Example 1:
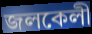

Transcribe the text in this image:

জলকেলী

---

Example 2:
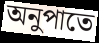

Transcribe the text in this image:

অনুপাতে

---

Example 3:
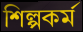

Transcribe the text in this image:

শিল্পকৰ্ম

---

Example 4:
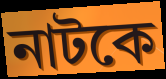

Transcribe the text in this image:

নাটকে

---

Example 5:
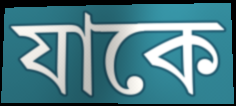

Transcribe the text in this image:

যাকে